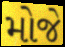
મોજે